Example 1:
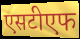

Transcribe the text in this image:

एसटीएफ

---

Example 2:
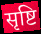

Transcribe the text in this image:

सृष्टि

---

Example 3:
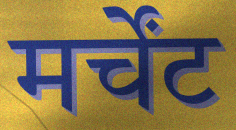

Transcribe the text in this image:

मर्चेंट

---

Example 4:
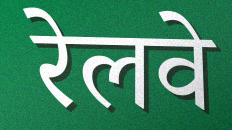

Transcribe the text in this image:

रेलवे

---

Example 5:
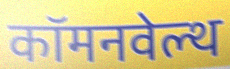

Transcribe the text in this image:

कॉमनवेल्थ